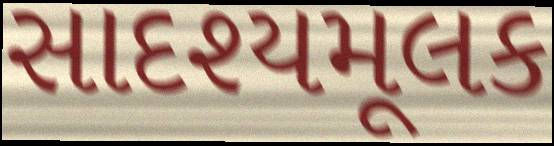
સાદશ્યમૂલક